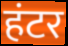
हंटर